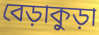
বেড়াকুড়া